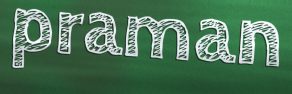
praman